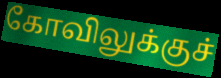
கோவிலுக்குச்